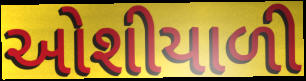
ઓશીયાળી